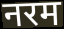
नरम